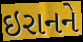
ઇરાનને